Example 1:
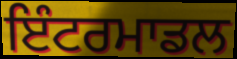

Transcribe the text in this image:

ਇੰਟਰਮਾਡਲ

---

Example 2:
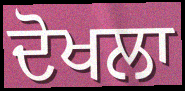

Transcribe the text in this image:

ਦੋਖਲਾ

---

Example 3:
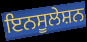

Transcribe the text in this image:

ਇਨਸੂਲੇਸ਼ਨ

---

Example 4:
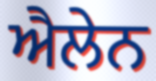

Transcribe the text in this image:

ਐਲੇਨ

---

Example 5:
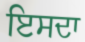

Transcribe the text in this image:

ਇਸਦਾ